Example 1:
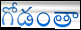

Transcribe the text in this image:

గోడంతా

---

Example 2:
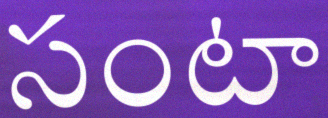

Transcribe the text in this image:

సంటా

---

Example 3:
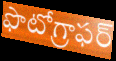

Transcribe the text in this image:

ఫొటోగ్రాఫర్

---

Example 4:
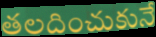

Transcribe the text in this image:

తలదించుకునే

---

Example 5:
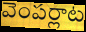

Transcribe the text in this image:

వెంపర్లాట